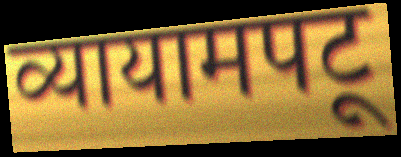
व्यायामपटू